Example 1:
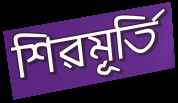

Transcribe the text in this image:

শিৱমূৰ্তি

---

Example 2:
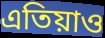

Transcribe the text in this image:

এতিয়াও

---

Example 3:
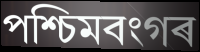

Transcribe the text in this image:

পশ্চিমবংগৰ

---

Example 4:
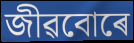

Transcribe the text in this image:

জীৱবোৰে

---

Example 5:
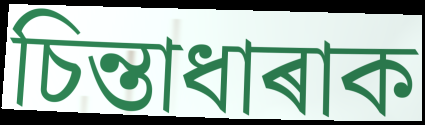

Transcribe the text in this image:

চিন্তাধাৰাক